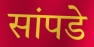
सांपडे